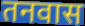
तनवास